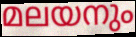
മലയനും